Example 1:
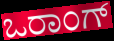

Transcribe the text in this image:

ಒರಾಂಗ್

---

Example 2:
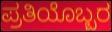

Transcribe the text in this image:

ಪ್ರತಿಯೊಬ್ಬರ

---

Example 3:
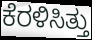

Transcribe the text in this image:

ಕೆರಳಿಸಿತ್ತು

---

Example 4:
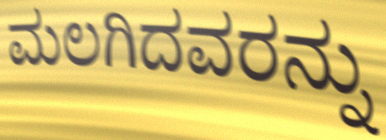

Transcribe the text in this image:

ಮಲಗಿದವರನ್ನು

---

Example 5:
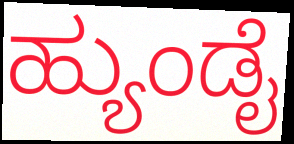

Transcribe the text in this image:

ಹ್ಯುಂಡೈ